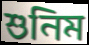
শুনিম